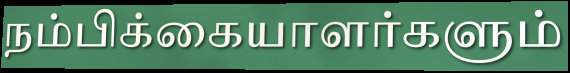
நம்பிக்கையாளர்களும்